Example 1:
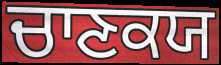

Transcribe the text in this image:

ਚਾਣਕਯ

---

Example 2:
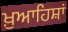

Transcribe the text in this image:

ਖ਼ੁਆਹਿਸ਼ਾਂ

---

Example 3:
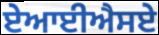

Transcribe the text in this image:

ਏਆਈਐਸਏ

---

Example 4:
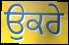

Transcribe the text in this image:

ਉਕਰੇ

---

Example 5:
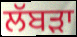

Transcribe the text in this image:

ਲੱਬੜਾ